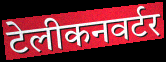
टेलीकनवर्टर